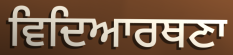
ਵਿਦਿਆਰਥਣਾ